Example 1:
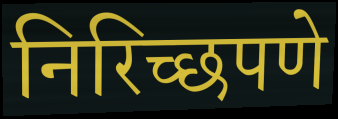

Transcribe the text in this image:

निरिच्छपणे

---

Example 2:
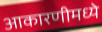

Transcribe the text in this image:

आकारणीमध्ये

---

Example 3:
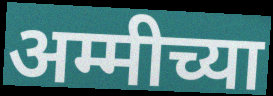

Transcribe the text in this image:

अम्मीच्या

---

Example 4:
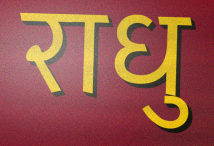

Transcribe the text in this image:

राधु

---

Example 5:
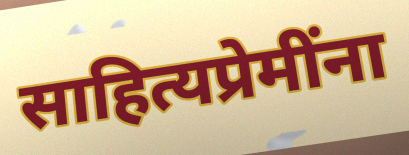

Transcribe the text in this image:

साहित्यप्रेमींना